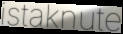
istaknute